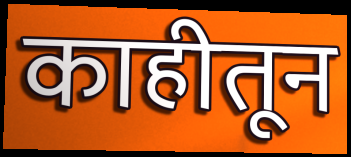
काहीतून